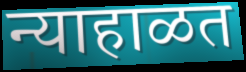
न्याहाळत